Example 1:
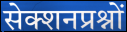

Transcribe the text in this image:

सेक्शनप्रश्नों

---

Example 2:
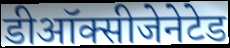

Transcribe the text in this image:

डीऑक्सीजेनेटेड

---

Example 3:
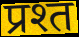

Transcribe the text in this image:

प्रश्त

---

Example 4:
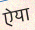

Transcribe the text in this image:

ऐया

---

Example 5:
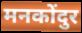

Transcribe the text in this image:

मनकोंदुर